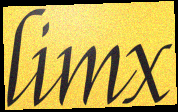
limx